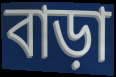
বাড়া